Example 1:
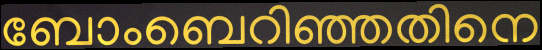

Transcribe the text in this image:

ബോംബെറിഞ്ഞതിനെ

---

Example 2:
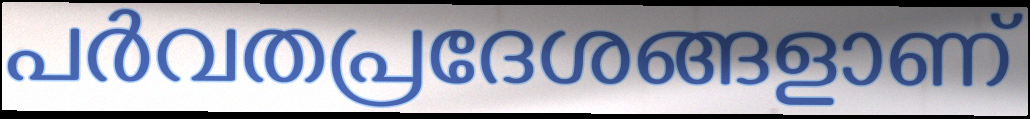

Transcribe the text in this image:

പർവതപ്രദേശങ്ങളാണ്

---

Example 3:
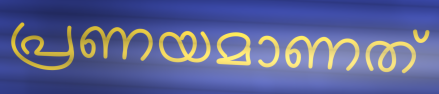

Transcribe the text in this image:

പ്രണയമാണത്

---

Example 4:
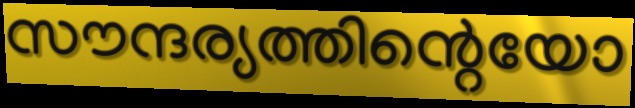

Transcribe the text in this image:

സൗന്ദര്യത്തിന്റെയോ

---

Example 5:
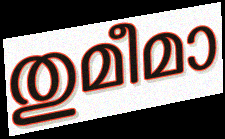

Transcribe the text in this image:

തുമീമാ